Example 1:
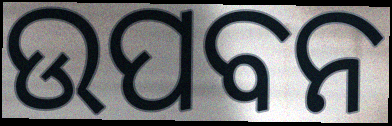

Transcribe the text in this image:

ଉପବନ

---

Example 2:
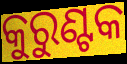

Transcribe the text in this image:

କୁରୁଣ୍ଟକ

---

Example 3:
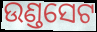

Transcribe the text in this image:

ଉଣ୍ଡସେଟ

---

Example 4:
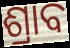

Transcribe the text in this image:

ଶ୍ରାବ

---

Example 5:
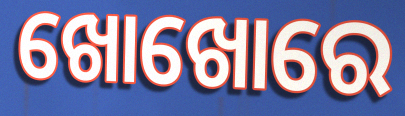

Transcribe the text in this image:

ଖୋଖୋରେ